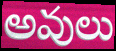
అవులు